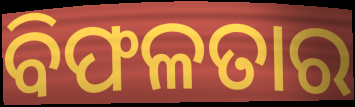
ବିଫଳତାର